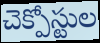
చెక్పోస్టుల